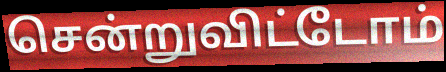
சென்றுவிட்டோம்